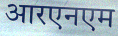
आरएनएम